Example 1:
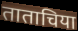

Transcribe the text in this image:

ताताचिया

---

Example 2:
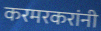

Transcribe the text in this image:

करमरकरांनी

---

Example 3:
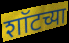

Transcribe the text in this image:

शॉटच्या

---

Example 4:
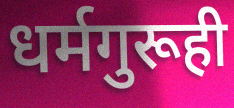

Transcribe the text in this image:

धर्मगुरूही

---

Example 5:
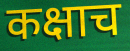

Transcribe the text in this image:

कक्षाच